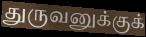
துருவனுக்குக்